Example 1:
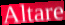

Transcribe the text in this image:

Altare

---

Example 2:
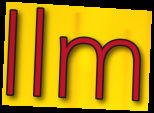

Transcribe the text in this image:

Ilm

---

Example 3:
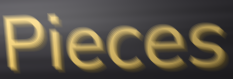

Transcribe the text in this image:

Pieces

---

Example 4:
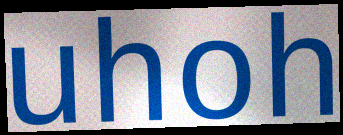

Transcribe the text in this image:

uhoh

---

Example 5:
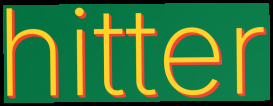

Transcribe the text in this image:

hitter